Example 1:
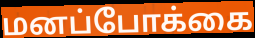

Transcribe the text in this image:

மனப்போக்கை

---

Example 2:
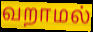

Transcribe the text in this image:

வறாமல்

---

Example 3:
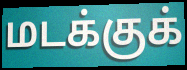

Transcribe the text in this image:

மடக்குக்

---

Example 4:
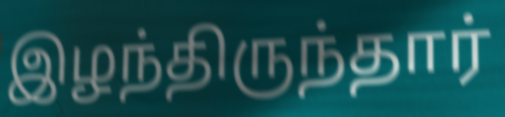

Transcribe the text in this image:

இழந்திருந்தார்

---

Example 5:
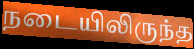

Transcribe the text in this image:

நடையிலிருந்த